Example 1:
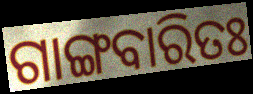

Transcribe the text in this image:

ଗାଙ୍ଗବାରିତଃ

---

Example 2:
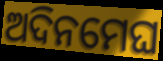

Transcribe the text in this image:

ଅଦିନମେଘ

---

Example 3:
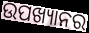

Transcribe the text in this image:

ଉପଖ୍ୟାନର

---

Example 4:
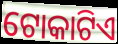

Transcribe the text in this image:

ଟୋକାଟିଏ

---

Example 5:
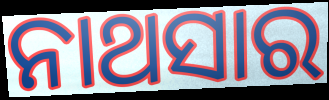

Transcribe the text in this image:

ନାଥସାର